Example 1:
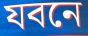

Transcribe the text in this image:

যবনে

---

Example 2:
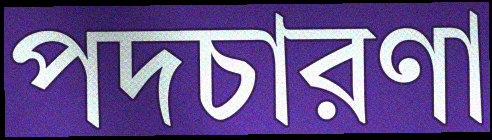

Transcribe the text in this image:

পদচারণা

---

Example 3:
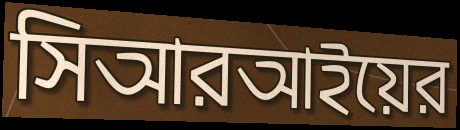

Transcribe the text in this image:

সিআরআইয়ের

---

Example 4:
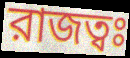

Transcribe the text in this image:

রাজত্বঃ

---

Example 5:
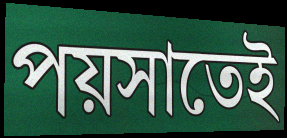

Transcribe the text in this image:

পয়সাতেই